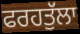
ਫਰਹਤੁੱਲਾ